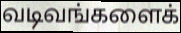
வடிவங்களைக்